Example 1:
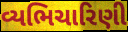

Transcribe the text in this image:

વ્યભિચારિણી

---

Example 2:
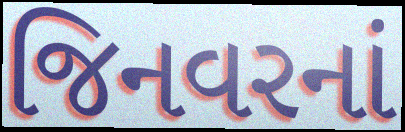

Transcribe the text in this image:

જિનવરનાં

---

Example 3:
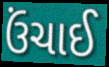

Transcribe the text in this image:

ઉંચાઈ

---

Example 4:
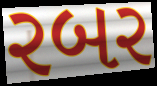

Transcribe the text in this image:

રબર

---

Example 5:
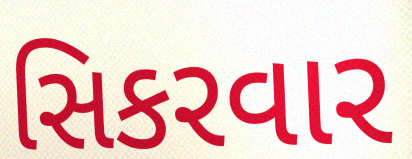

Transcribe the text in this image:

સિકરવાર